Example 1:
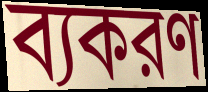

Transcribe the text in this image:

ব্যকরণ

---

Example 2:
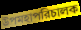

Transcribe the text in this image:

উপমহাপরিচালক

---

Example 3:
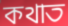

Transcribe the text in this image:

কথাত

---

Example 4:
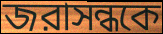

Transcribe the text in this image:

জরাসন্ধকে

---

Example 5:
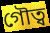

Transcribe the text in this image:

গৌত্ব